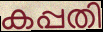
കപ്പതി